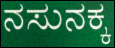
ನಸುನಕ್ಕ